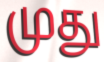
முது